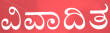
ವಿವಾದಿತ